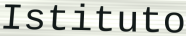
Istituto